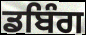
ਡਬਿੰਗ